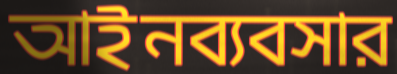
আইনব্যবসার